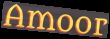
Amoor